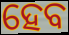
ହେବ